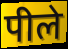
पीले